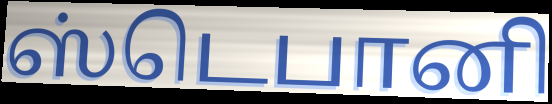
ஸ்டெபானி